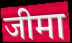
जीमा